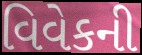
વિવેકની